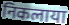
निकलाया